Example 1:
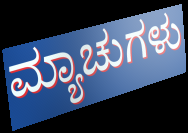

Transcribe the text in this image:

ಮ್ಯಾಚುಗಳು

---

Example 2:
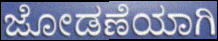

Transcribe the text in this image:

ಜೋಡಣೆಯಾಗಿ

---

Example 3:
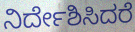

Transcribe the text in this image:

ನಿರ್ದೇಶಿಸಿದರೆ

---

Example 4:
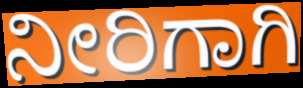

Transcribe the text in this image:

ನೀರಿಗಾಗಿ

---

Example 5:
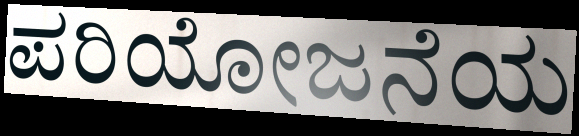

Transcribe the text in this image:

ಪರಿಯೋಜನೆಯ